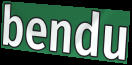
bendu